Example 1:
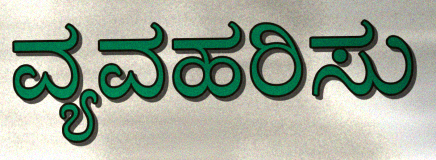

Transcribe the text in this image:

ವ್ಯವಹರಿಸು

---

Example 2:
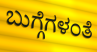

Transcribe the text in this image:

ಬುಗ್ಗೆಗಳಂತೆ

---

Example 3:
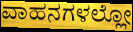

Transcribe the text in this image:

ವಾಹನಗಳಲ್ಲೋ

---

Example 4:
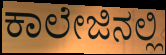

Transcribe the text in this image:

ಕಾಲೇಜಿನಲ್ಲಿ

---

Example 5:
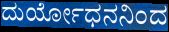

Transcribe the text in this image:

ದುರ್ಯೋಧನನಿಂದ